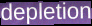
depletion